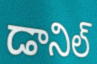
డానిల్